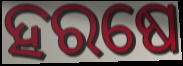
ହରଷେ